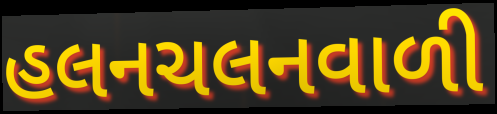
હલનચલનવાળી